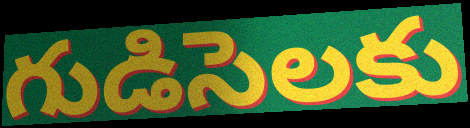
గుడిసెలకు